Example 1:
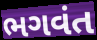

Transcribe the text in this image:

ભગવંત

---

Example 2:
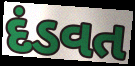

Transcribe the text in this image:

દંડવત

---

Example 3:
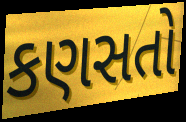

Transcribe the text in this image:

કણસતો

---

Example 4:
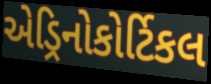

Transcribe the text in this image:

એડ્રિનોકોર્ટિકલ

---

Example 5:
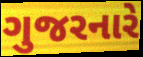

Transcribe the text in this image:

ગુજરનારે